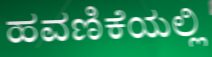
ಹವಣಿಕೆಯಲ್ಲಿ